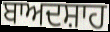
ਬਾਅਦਸ਼ਾਹ